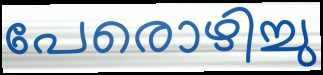
പേരൊഴിച്ചു